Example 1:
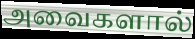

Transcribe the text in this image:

அவைகளால்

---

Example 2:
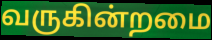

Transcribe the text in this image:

வருகின்றமை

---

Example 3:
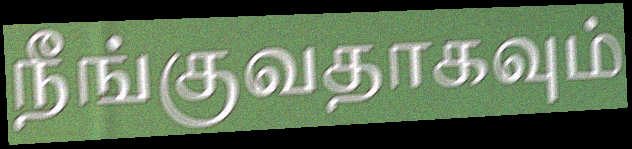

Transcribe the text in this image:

நீங்குவதாகவும்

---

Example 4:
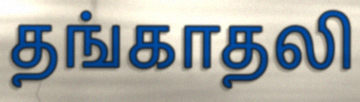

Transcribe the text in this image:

தங்காதலி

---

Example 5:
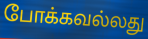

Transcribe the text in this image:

போக்கவல்லது